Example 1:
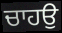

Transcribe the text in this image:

ਚਾਹਉ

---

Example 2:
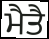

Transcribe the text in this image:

ਮੈਤੈ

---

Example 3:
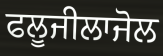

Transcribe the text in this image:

ਫਲੂਜੀਲਾਜੋਲ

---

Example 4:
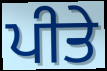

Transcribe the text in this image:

ਪੀਤੇ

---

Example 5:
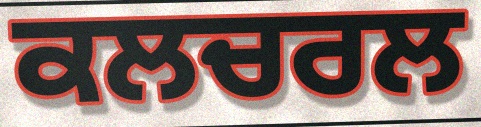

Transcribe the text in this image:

ਕਲਚਰਲ